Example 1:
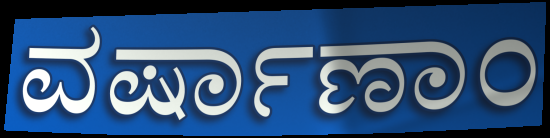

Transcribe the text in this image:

ವರ್ಷಾಣಾಂ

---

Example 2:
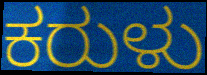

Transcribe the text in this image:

ಕರುಳು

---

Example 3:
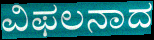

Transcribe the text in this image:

ವಿಫಲನಾದ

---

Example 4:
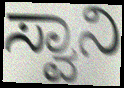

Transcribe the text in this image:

ಸ್ವಾನಿ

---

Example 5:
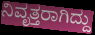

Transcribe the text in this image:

ನಿವೃತ್ತರಾಗಿದ್ದು